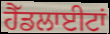
ਹੈੱਡਲਾਈਟਾਂ